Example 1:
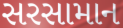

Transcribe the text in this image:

સરસામાન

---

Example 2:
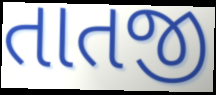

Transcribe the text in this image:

તાતજી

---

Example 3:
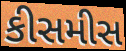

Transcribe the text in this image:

કીસમીસ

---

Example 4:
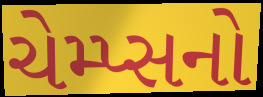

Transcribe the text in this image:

ચેમ્પ્સનો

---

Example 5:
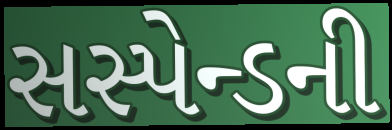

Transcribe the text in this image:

સસ્પેન્ડની